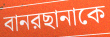
বানরছানাকে